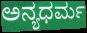
ಅನ್ಯಧರ್ಮ